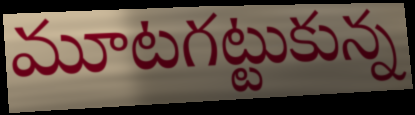
మూటగట్టుకున్న